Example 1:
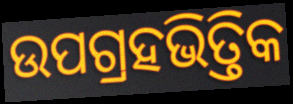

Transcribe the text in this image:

ଉପଗ୍ରହଭିତ୍ତିକ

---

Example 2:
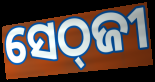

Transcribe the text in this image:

ସେଠ୍‌ଜୀ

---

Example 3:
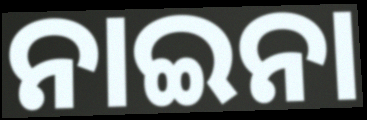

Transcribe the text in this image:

ନାଇନା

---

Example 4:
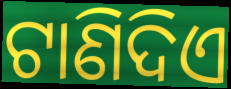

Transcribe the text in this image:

ଟାଣିଦିଏ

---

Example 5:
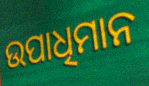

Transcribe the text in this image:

ଉପାଧିମାନ